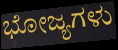
ಭೋಜ್ಯಗಳು